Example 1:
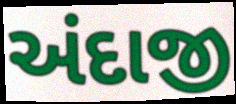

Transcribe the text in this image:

અંદાજી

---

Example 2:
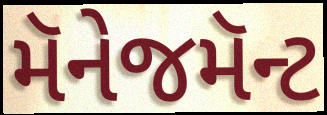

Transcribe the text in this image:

મૅનેજમૅન્ટ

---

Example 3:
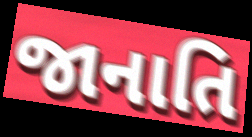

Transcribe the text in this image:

જાનાતિ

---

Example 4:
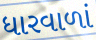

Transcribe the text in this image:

ધારવાળાં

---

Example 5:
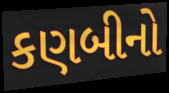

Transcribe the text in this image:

કણબીનો